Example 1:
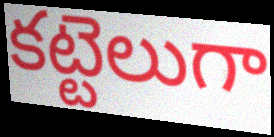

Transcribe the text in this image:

కట్టెలుగా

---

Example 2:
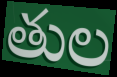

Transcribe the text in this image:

తుల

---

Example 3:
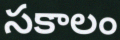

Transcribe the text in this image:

సకాలం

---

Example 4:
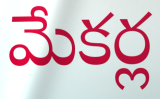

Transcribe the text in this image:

మేకర్ల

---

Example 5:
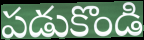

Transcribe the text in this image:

పడుకొండి